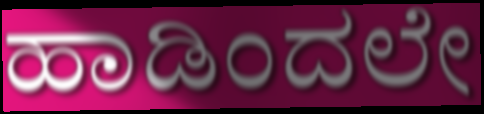
ಹಾಡಿಂದಲೇ